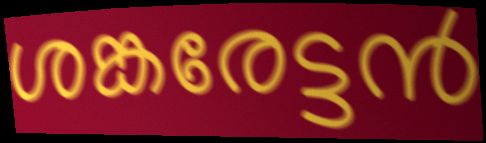
ശങ്കരേട്ടൻ